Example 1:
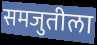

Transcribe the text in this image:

समजुतीला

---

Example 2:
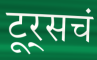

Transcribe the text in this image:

टूर्सचं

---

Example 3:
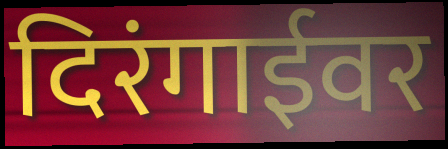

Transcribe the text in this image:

दिरंगाईवर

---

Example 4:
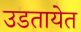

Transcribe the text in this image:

उडतायेत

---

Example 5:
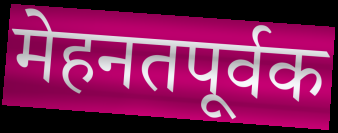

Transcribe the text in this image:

मेहनतपूर्वक